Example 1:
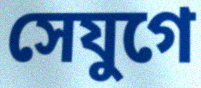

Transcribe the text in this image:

সেযুগে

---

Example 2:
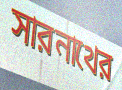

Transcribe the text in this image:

সারনাথের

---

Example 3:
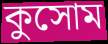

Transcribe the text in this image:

কুসোম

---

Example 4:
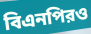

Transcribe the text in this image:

বিএনপিরও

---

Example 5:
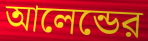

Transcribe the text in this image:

আলেন্ডের